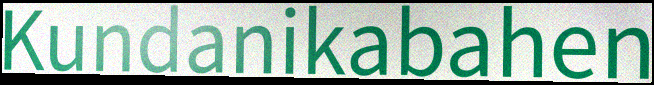
Kundanikabahen